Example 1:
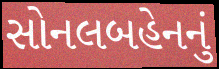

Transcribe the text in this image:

સોનલબહેનનું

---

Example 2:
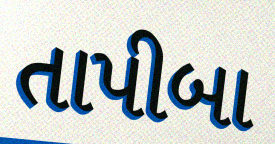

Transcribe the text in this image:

તાપીબા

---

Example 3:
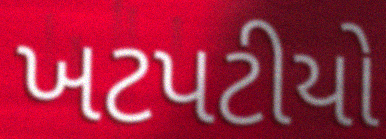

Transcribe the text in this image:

ખટપટીયો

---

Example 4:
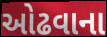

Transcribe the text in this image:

ઓઢવાના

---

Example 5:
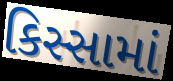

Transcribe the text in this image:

કિસ્સામાં